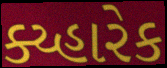
ક્ય્હારેક